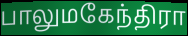
பாலுமகேந்திரா